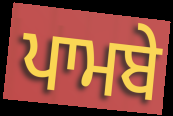
ਪਾਮਬੇ